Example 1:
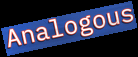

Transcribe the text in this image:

Analogous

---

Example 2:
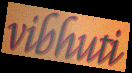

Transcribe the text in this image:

vibhuti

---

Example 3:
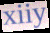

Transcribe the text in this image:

xiiy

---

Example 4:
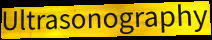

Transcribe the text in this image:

Ultrasonography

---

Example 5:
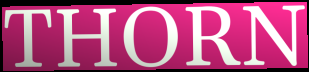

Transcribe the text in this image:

THORN